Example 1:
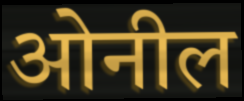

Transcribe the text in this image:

ओनील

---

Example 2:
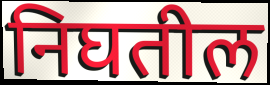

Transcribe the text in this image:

निघतील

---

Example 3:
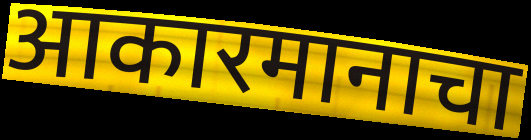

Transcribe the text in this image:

आकारमानाचा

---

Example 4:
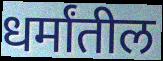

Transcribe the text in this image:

धर्मांतील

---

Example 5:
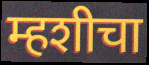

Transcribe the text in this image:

म्हशीचा